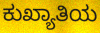
ಕುಖ್ಯಾತಿಯ